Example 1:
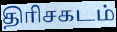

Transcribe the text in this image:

திரிசகடம்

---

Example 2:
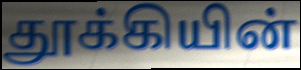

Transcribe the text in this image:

தூக்கியின்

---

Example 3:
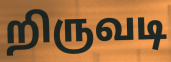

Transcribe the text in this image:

றிருவடி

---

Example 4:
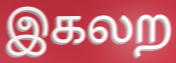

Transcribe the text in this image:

இகலற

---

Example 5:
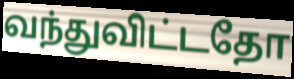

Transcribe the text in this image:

வந்துவிட்டதோ